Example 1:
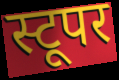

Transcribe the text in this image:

स्टूपर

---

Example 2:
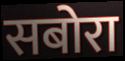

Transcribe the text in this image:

सबोरा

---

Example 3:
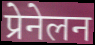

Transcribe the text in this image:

प्रेनेलन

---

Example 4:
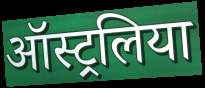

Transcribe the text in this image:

ऑस्ट्रलिया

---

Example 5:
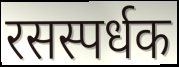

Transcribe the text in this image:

रसस्पर्धक